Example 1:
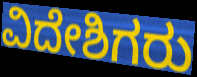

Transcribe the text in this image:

ವಿದೇಶಿಗರು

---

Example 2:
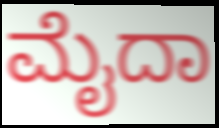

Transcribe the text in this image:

ಮೈದಾ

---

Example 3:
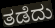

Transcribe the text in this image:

ತಡೆದು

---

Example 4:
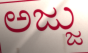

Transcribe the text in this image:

ಅಜ್ಜು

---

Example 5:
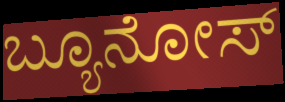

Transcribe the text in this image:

ಬ್ಯೂನೋಸ್